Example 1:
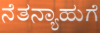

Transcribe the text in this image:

ನೆತನ್ಯಾಹುಗೆ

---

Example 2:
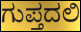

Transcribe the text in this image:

ಗುಪ್ತದಲಿ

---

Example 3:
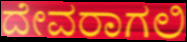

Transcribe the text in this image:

ದೇವರಾಗಲಿ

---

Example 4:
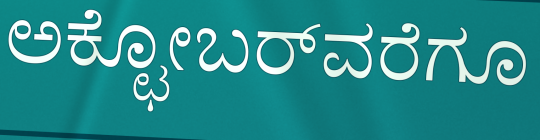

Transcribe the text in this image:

ಅಕ್ಟೋಬರ್‌ವರೆಗೂ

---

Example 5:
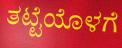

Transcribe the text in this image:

ತಟ್ಟೆಯೊಳಗೆ